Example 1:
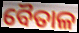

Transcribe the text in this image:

ବୈତାଳ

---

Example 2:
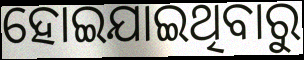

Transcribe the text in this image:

ହୋଇଯାଇଥିବାରୁ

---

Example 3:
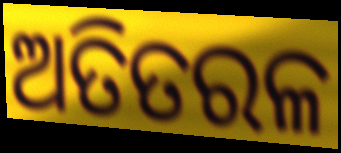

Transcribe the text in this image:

ଅତିତରଳ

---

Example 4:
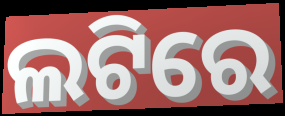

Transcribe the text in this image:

ଲଟିରେ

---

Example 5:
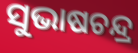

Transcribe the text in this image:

ସୁଭାଷଚନ୍ଦ୍ର